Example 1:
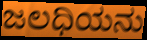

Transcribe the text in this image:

ಜಲಧಿಯನು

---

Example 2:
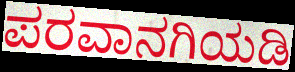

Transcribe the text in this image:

ಪರವಾನಗಿಯಡಿ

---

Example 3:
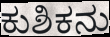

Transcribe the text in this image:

ಕುಶಿಕನು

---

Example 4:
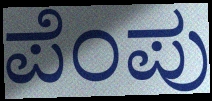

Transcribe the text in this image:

ಪೆಂಪು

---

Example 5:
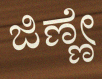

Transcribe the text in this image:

ಜಿಣ್ಣೇ